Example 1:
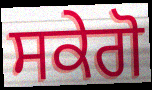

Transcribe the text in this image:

ਸਕੇਗੋ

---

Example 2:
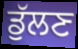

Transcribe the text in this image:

ਡੁੱਲਣ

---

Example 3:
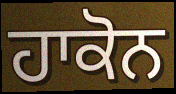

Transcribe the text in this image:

ਹਾਕੋਨ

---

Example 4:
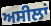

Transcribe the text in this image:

ਅਸੀਲਾਂ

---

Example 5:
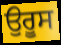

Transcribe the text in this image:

ਉਰੂਸ